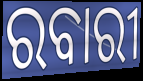
ରବାରୀ